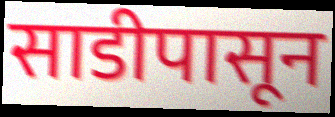
साडीपासून